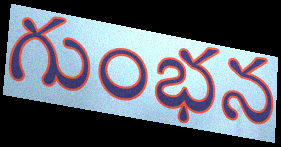
గుంభన